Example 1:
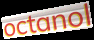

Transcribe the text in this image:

octanol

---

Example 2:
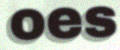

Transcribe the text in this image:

oes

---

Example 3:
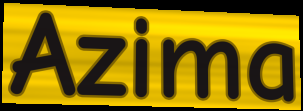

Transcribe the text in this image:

Azima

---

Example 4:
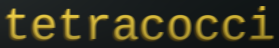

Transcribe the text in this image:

tetracocci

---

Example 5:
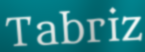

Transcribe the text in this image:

Tabriz